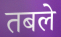
तबले